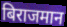
बिराजमान